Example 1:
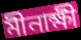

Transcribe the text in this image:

মীনাক্ষী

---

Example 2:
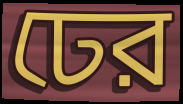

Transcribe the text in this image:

ঢের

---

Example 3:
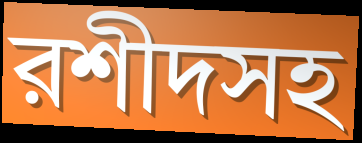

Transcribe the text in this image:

রশীদসহ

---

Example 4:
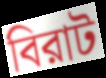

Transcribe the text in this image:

বিরাট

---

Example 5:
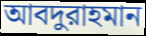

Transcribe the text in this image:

আবদুরাহমান